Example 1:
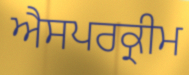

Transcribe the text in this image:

ਐਸਪਰਕ੍ਰੀਮ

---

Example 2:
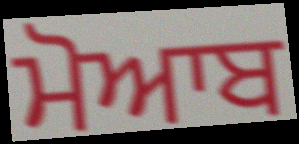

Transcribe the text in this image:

ਮੋਆਬ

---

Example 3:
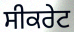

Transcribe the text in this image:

ਸੀਕਰੇਟ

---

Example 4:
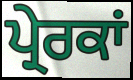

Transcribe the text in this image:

ਪ੍ਰੇਰਕਾਂ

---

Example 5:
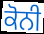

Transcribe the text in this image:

ਕੋਨੀ